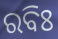
ରବିଃ